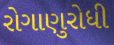
રોગાણુરોધી